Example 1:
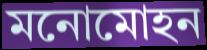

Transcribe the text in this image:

মনোমোহন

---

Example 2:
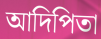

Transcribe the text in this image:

আদিপিতা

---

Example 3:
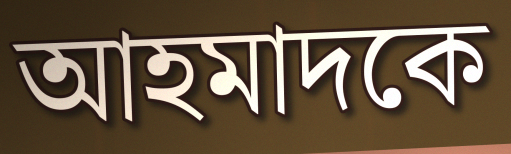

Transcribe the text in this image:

আহমাদকে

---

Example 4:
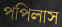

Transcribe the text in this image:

পপিলাস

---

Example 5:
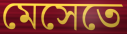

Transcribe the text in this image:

মেসেতে